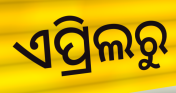
ଏପ୍ରିଲରୁ